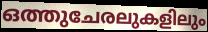
ഒത്തുചേരലുകളിലും